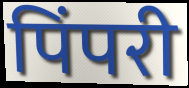
पिंपरी